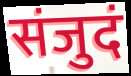
संजुदं